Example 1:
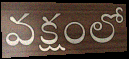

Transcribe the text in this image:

వక్షంలో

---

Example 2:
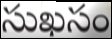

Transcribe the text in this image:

సుఖసం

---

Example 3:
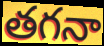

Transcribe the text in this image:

తగనా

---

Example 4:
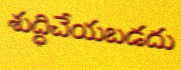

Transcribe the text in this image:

శుద్ధిచేయబడదు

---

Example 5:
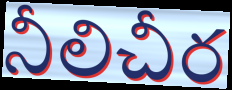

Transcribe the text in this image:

నీలిచీర